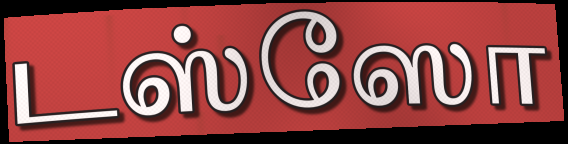
டஸ்ஸோ